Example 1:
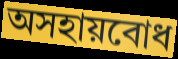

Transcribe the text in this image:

অসহায়বোধ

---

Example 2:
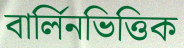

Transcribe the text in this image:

বার্লিনভিত্তিক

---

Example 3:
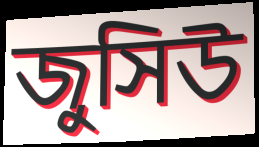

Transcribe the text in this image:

জুসিউ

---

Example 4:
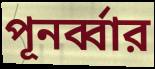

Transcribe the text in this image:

পূনর্ব্বার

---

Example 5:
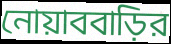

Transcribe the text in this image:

নোয়াববাড়ির